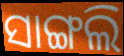
ସାଙ୍ଗଲି